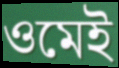
ওমেই